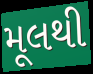
મૂલથી